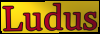
Ludus